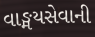
વાઙ્મયસેવાની